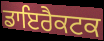
ਡਾਇਰੈਕਟਕ